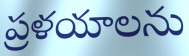
ప్రళయాలను